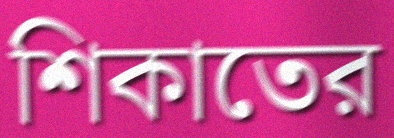
শিকাতের